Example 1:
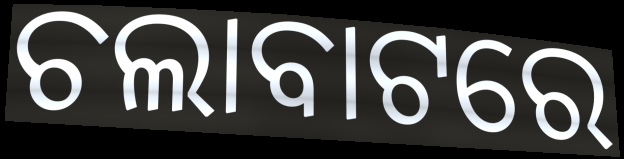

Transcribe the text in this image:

ଚଲାବାଟରେ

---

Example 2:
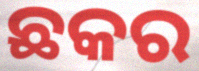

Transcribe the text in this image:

ଛକର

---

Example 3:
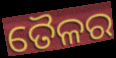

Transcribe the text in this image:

ତୈଳର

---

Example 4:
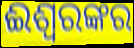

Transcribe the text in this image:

ଈଶ୍ୱରଙ୍କର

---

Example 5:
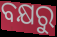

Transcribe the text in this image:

ବକ୍ଷରୁ